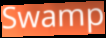
Swamp